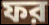
ফর